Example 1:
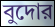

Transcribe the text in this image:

বুদোর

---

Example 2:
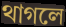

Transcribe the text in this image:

থাগলে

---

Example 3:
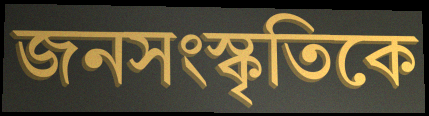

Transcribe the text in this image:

জনসংস্কৃতিকে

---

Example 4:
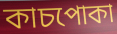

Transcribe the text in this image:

কাচপোকা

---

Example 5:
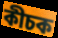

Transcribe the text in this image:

কীচক